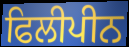
ਫਿਲੀਪੀਨ